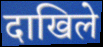
दाखिले